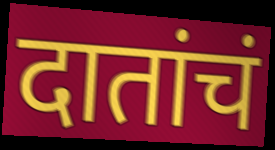
दातांचं